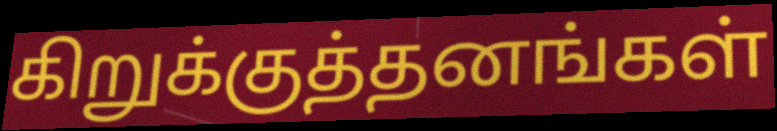
கிறுக்குத்தனங்கள்